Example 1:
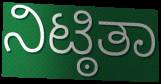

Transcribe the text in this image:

ನಿಟ್ಠಿತಾ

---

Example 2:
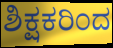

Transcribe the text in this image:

ಶಿಕ್ಷಕರಿಂದ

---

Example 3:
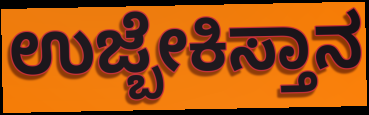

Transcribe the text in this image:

ಉಜ್ಬೇಕಿಸ್ತಾನ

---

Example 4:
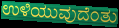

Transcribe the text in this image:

ಉಳಿಯುವುದೆಂತು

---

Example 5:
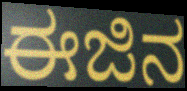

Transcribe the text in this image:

ಈಜಿನ